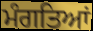
ਮੰਗਤਿਆਂ